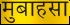
मुबाहसा